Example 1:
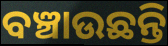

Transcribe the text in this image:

ବଞ୍ଚାଉଛନ୍ତି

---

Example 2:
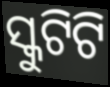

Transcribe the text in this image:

ସ୍କୁଟିଟି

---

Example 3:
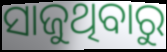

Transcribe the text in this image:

ସାଜୁଥିବାରୁ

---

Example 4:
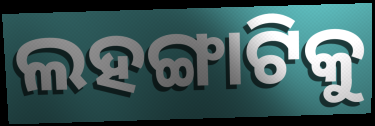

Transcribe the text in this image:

ଲହଙ୍ଗାଟିକୁ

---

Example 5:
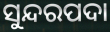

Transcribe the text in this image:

ସୁନ୍ଦରପଦା